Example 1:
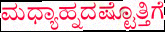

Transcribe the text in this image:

ಮಧ್ಯಾಹ್ನದಷ್ಟೊತ್ತಿಗೆ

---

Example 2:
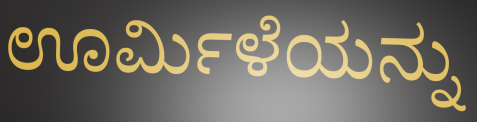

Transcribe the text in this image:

ಊರ್ಮಿಳೆಯನ್ನು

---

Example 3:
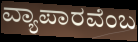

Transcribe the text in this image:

ವ್ಯಾಪಾರವೆಂಬ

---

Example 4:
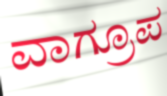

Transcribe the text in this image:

ವಾಗ್ರೂಪ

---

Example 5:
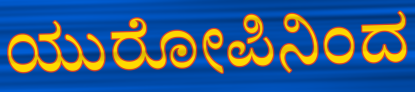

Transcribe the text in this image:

ಯುರೋಪಿನಿಂದ